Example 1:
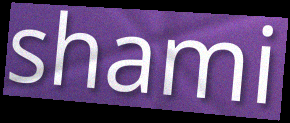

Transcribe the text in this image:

shami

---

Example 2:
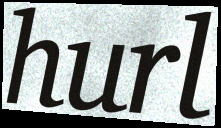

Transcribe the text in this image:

hurl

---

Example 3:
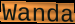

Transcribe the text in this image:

Wanda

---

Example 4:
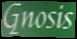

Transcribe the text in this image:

Gnosis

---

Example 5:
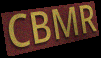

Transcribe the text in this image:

CBMR